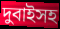
দুবাইসহ